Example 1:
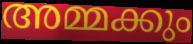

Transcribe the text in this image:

അമ്മക്കും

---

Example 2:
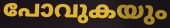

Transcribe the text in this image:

പോവുകയും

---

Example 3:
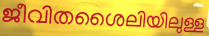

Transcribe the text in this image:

ജീവിതശൈലിയിലുള്ള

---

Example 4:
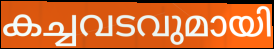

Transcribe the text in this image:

കച്ചവടവുമായി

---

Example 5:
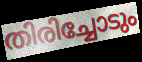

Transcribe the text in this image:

തിരിച്ചോടും